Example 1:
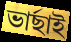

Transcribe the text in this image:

ভাৰ্ছাই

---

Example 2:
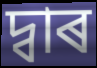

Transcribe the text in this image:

দ্বাৰ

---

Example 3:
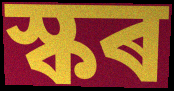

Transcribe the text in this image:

স্কৰ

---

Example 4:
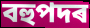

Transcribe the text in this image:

বহুপদৰ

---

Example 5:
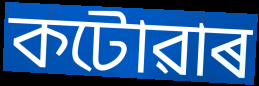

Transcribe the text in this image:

কটোৱাৰ